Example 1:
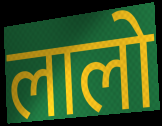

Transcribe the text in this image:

लालो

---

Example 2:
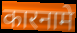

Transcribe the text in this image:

कारनामे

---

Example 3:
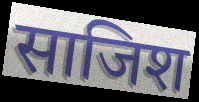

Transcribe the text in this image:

साजिश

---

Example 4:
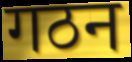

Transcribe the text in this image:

गठन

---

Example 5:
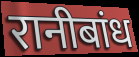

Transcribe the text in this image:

रानीबांध